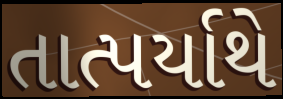
તાત્પર્યાથે